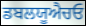
ਡਬਲਯੂਐਚਓ